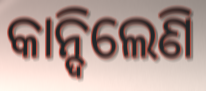
କାନ୍ଦିଲେଣି